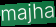
majha